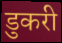
डुकरी